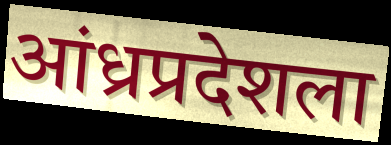
आंध्रप्रदेशला